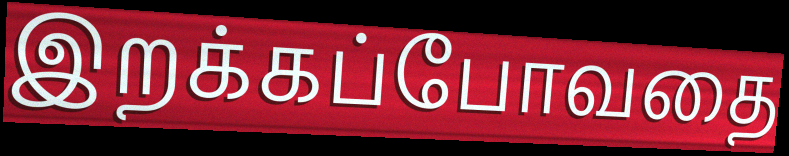
இறக்கப்போவதை